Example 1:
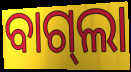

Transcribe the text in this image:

ବାଗ୍‌ଲା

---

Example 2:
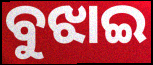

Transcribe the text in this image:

ବୁଝାଇ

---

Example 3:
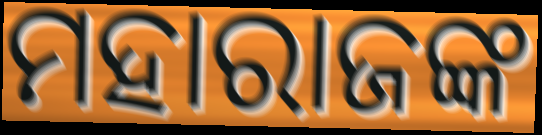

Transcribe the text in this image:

ମହାରାଜଙ୍କ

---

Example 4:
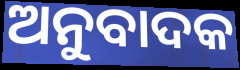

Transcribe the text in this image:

ଅନୁବାଦକ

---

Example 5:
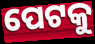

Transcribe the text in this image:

ପେଟକୁ